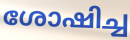
ശോഷിച്ച